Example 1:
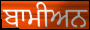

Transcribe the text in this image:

ਬਾਮੀਅਨ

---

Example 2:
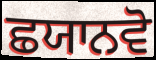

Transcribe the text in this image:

ਛਯਾਨਵੋ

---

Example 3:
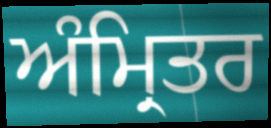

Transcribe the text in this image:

ਅੰਮ੍ਰਿਤਰ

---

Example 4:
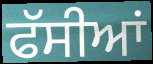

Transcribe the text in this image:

ਫੱਸੀਆਂ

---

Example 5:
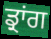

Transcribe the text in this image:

ਡ੍ਰਾਂਗ